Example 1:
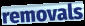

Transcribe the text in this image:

removals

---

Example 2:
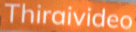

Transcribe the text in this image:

Thiraivideo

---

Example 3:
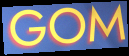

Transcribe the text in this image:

GOM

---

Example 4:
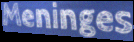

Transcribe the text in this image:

Meninges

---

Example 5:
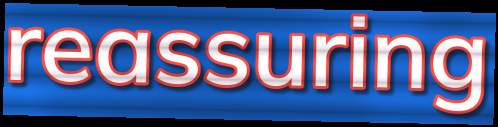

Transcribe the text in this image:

reassuring